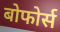
बोफोर्स